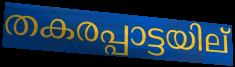
തകരപ്പാട്ടയില്